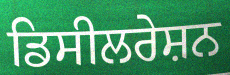
ਡਿਸੀਲਰੇਸ਼ਨ